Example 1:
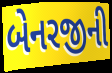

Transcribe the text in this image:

બેનરજીની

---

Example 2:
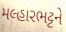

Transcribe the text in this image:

મલ્હારભટ્ટને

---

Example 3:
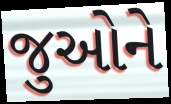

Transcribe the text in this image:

જુઓને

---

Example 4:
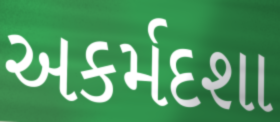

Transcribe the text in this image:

અકર્મદશા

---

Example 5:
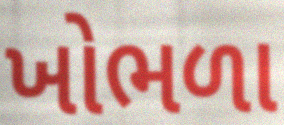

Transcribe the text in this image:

ખોભળા